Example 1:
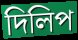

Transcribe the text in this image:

দিলিপ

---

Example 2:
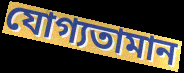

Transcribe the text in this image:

যোগ্যতামান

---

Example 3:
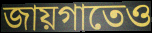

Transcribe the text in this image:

জায়গাতেও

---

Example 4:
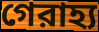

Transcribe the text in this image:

গেরাহ্য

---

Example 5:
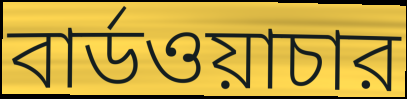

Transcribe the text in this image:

বার্ডওয়াচার